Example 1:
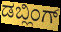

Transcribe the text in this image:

ಡಬ್ಲಿಂಗ್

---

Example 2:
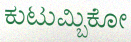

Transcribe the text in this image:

ಕುಟುಮ್ಬಿಕೋ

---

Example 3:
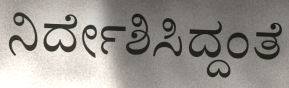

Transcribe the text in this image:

ನಿರ್ದೇಶಿಸಿದ್ದಂತೆ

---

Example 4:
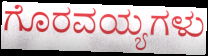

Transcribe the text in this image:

ಗೊರವಯ್ಯಗಳು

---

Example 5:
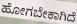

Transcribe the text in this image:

ಹೋಗಬೇಕಾಗಿದೆ